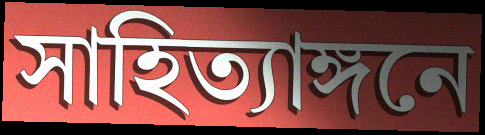
সাহিত্যাঙ্গনে